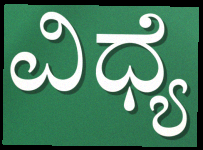
ವಿಧ್ಯೆ